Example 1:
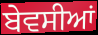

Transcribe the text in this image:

ਬੇਵਸੀਆਂ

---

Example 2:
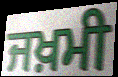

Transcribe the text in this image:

ਜਖ਼ਮੀ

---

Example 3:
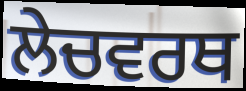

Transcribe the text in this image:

ਲੇਚਵਰਥ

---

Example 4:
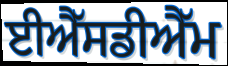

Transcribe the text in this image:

ਈਐੱਸਡੀਐੱਮ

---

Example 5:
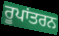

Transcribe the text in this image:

ਰੂਪਾਂਤਰਨ